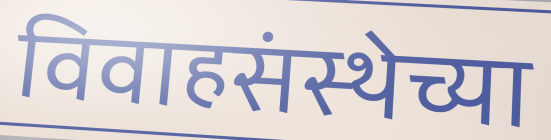
विवाहसंस्थेच्या